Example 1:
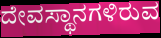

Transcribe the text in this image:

ದೇವಸ್ಥಾನಗಳಿರುವ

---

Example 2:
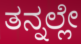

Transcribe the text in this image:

ತನ್ನಲ್ಲೇ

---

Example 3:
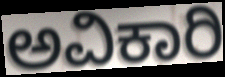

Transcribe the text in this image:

ಅವಿಕಾರಿ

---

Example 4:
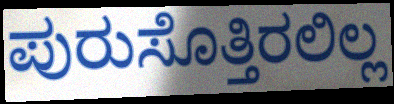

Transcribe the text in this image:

ಪುರುಸೊತ್ತಿರಲಿಲ್ಲ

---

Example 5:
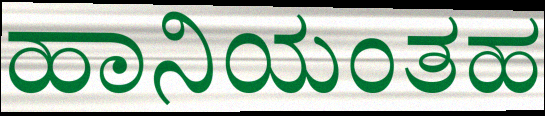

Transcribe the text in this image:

ಹಾನಿಯಂತಹ